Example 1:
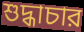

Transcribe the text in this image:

শুদ্ধাচার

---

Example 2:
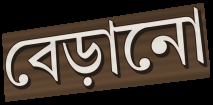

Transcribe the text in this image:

বেড়ানো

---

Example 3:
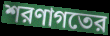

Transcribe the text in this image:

শরণাগতের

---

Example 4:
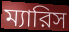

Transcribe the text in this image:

ম্যারিস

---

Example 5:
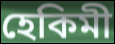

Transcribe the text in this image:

হেকিমী